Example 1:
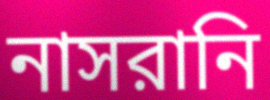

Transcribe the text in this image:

নাসরানি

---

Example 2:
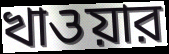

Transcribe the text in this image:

খাওয়ার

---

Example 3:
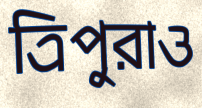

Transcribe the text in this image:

ত্রিপুরাও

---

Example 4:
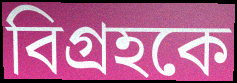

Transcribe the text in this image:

বিগ্রহকে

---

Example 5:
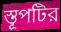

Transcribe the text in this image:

স্তূপটির